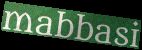
mabbasi